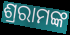
ଶ୍ରରାମଙ୍କ